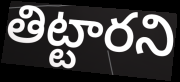
తిట్టారని